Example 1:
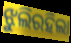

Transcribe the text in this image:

ଝୁଲିରହିଲା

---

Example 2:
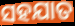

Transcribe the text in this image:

ସହଯାତ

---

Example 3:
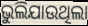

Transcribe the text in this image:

ଭୁଲିଯାଉଥିଲା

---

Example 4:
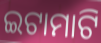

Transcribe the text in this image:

ଇଟାମାଟି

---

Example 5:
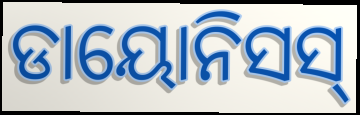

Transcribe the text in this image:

ଡାୟୋନିସସ୍